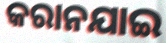
କରାନଯାଇ